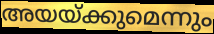
അയയ്ക്കുമെന്നും